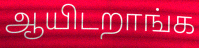
ஆயிடறாங்க